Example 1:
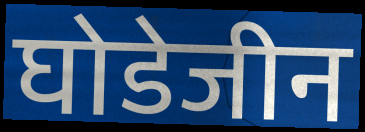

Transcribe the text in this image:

घोडेजीन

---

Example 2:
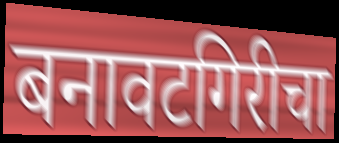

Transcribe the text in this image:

बनावटगिरीचा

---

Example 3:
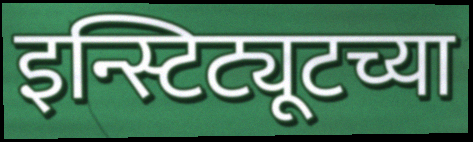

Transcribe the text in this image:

इन्स्टिट्यूटच्या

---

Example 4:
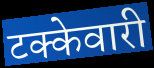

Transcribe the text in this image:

टक्केवारी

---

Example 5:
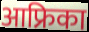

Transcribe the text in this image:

आफ्रिका